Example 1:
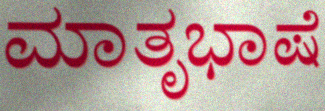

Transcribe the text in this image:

ಮಾತೃಭಾಷೆ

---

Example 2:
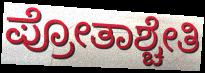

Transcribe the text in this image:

ಪ್ರೋತಾಶ್ಚೇತಿ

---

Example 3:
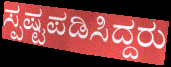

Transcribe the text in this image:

ಸ್ಪಷ್ಟಪಡಿಸಿದ್ದರು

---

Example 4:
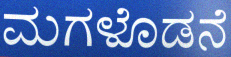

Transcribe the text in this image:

ಮಗಳೊಡನೆ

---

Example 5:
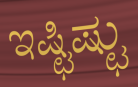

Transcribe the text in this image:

ಇಷ್ಟಿಷ್ಟು